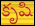
కృషి